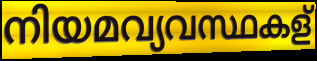
നിയമവ്യവസ്ഥകള്